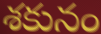
శకునం